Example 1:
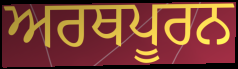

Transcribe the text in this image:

ਅਰਥਪੂਰਨ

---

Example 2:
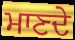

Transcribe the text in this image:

ਮਾਣਦੇ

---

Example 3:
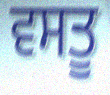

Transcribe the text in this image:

ਵਸਤੂ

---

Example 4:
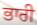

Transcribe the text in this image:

ਭਾਰੀ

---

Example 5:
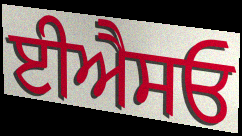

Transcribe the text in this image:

ਈਐਸਓ